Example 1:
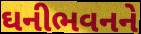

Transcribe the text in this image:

ઘનીભવનને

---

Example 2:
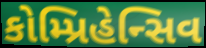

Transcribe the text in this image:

કોમ્પ્રિહેન્સિવ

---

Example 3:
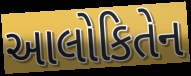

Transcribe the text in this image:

આલોકિતેન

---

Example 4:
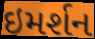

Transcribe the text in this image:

ઇમર્શન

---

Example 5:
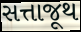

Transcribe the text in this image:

સત્તાજૂથ